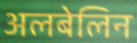
अलबेलिन